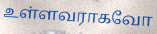
உள்ளவராகவோ